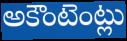
అకౌంటెంట్లు